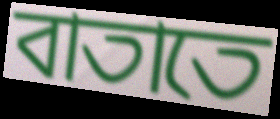
বাতাতে